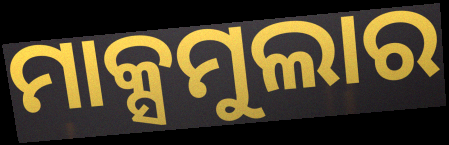
ମାକ୍ସମୁଲାର